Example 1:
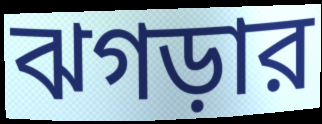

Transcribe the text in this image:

ঝগড়ার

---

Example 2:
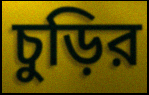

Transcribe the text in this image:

চুড়ির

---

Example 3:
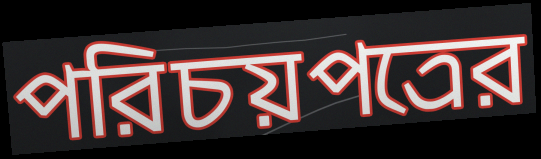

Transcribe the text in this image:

পরিচয়পত্রের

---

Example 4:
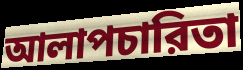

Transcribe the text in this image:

আলাপচারিতা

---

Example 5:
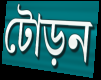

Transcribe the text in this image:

টোড়ন